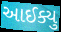
આઈક્યુ